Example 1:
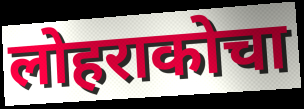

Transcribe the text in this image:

लोहराकोचा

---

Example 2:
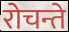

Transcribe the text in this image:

रोचन्ते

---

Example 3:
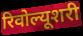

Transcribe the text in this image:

रिवोल्यूशरी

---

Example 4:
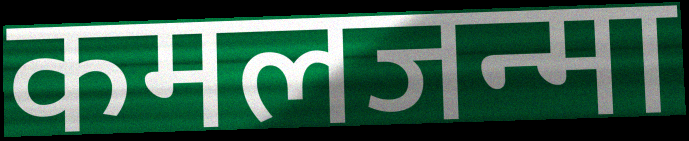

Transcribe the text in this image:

कमलजन्मा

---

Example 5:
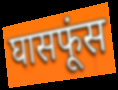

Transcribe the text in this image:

घासफूंस